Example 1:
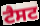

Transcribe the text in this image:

ਟੈਸਟ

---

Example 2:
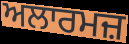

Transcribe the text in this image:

ਅਲਾਰਮਜ਼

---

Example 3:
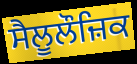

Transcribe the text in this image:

ਸੈਲੂਲੌਜ਼ਿਕ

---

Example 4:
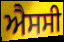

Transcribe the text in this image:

ਐਸਸੀ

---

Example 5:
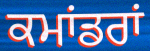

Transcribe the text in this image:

ਕਮਾਂਡਰਾਂ